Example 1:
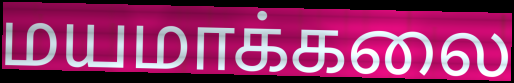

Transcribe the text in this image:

மயமாக்கலை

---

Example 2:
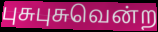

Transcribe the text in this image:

புசுபுசுவென்ற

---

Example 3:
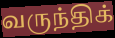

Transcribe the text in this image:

வருந்திக்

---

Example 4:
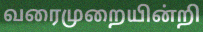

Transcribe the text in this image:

வரைமுறையின்றி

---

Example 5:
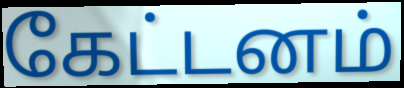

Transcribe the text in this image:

கேட்டனம்